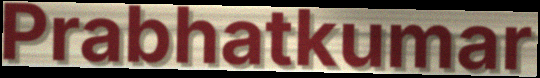
Prabhatkumar